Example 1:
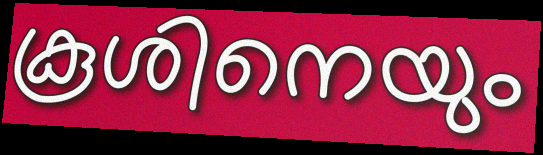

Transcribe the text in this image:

കൂശിനെയും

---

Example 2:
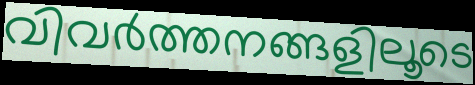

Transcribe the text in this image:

വിവർത്തനങ്ങളിലൂടെ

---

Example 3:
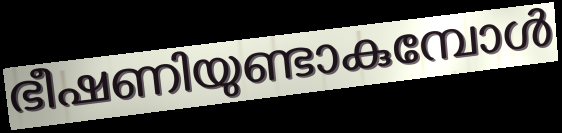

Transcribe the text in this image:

ഭീഷണിയുണ്ടാകുമ്പോൾ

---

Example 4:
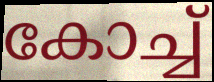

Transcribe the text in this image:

കോച്ച്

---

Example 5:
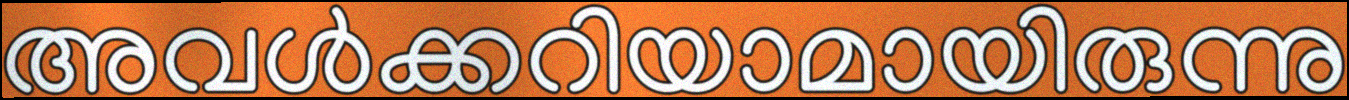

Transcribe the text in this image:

അവൾക്കറിയാമായിരുന്നു